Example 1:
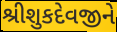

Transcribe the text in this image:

શ્રીશુકદેવજીને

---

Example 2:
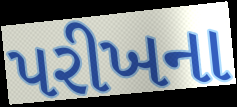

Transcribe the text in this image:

પરીખના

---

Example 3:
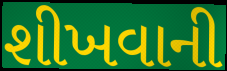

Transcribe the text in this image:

શીખવાની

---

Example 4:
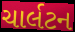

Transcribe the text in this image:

ચાર્લટન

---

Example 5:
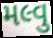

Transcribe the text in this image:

મલ્વુ